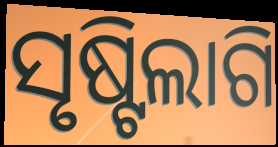
ସୃଷ୍ଟିଲାଗି